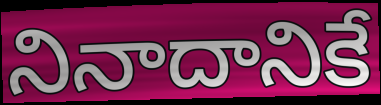
నినాదానికే